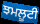
ਝਮਲੂਟੀ